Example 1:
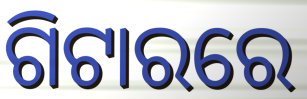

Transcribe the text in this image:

ଗିଟାରରେ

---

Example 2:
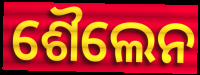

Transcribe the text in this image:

ଶୈଲେନ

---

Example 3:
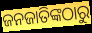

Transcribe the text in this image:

ଜନଜାତିଙ୍କଠାରୁ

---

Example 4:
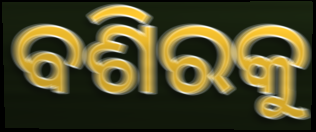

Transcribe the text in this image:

ବଶିରକୁ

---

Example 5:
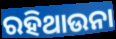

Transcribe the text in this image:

ରହିଥାଉନା